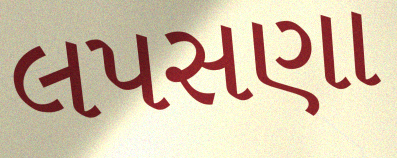
લપસણા